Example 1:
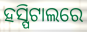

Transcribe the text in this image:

ହସ୍ପିଟାଲରେ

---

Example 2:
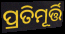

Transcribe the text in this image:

ପ୍ରତିମୂର୍ତ୍ତି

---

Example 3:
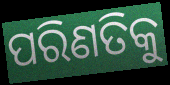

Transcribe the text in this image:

ପରିଣତିକୁ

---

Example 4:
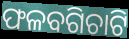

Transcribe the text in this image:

ଫଳବଗିଚାଟି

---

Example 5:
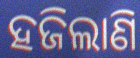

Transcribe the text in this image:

ହଜିଲାଣି